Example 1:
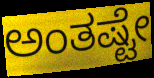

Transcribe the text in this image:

ಅಂತಷ್ಟೇ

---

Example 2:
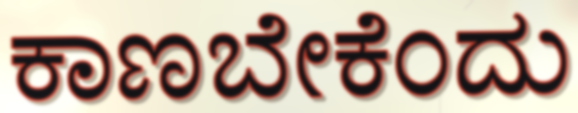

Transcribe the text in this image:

ಕಾಣಬೇಕೆಂದು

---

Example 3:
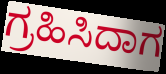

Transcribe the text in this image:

ಗ್ರಹಿಸಿದಾಗ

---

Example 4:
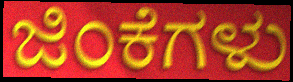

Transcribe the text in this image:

ಜಿಂಕೆಗಳು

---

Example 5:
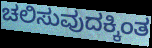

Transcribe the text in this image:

ಚಲಿಸುವುದಕ್ಕಿಂತ